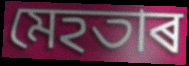
মেহতাৰ